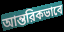
আন্তরিকভাবে